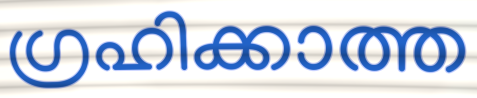
ഗ്രഹിക്കാത്ത